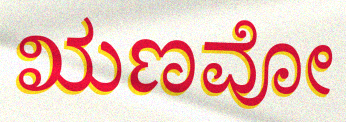
ಋಣವೋ